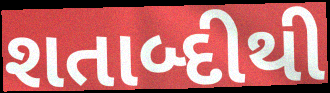
શતાબ્દીથી